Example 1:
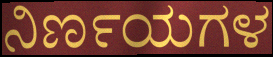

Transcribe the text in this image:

ನಿರ್ಣಯಗಳ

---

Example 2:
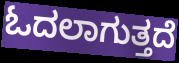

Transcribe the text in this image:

ಓದಲಾಗುತ್ತದೆ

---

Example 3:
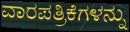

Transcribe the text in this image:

ವಾರಪತ್ರಿಕೆಗಳನ್ನು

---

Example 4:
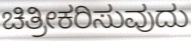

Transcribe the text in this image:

ಚಿತ್ರೀಕರಿಸುವುದು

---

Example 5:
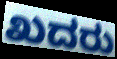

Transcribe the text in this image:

ಖದರು